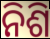
ନିଶି